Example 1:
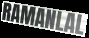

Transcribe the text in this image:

RAMANLAL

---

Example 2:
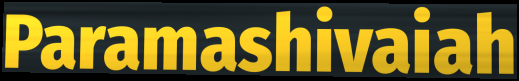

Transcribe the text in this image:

Paramashivaiah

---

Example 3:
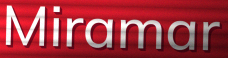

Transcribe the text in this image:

Miramar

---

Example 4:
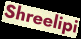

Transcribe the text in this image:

Shreelipi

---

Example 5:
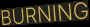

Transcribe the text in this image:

BURNING